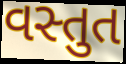
વસ્તુત